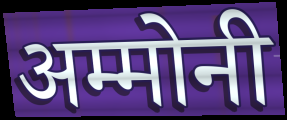
अम्मोनी